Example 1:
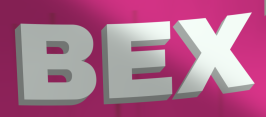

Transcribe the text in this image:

BEX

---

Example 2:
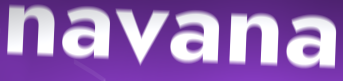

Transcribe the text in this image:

navana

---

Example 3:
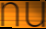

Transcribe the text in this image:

nu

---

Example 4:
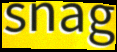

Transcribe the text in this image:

snag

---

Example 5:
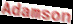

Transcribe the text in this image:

Adamson